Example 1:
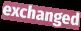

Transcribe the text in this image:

exchanged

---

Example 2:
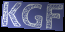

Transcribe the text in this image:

KGF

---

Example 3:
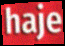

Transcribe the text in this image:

haje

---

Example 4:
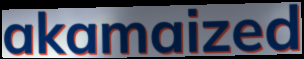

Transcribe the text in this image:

akamaized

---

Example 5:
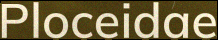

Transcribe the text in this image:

Ploceidae